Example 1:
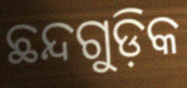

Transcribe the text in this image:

ଛନ୍ଦଗୁଡ଼ିକ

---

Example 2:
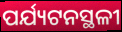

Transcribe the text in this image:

ପର୍ଯ୍ୟଟନସ୍ଥଳୀ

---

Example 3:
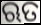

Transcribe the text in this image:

ଋତ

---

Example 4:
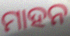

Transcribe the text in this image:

ମାହନ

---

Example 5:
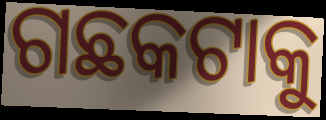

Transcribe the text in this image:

ଗଛକଟାକୁ